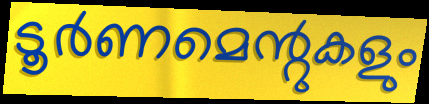
ടൂർണമെന്റുകളും